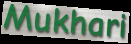
Mukhari